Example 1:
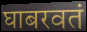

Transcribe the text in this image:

घाबरवतं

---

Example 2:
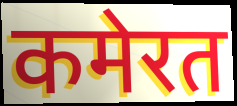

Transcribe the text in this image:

कमेरत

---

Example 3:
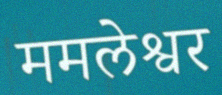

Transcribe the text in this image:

ममलेश्वर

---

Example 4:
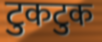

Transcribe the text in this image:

टुकटुक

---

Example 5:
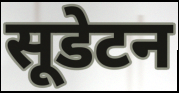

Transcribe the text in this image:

सूडेटन